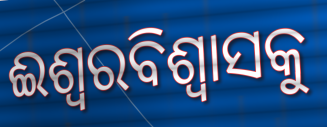
ଈଶ୍ୱରବିଶ୍ୱାସକୁ